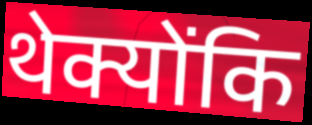
थेक्योंकि